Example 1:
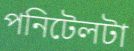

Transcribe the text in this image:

পনিটেলটা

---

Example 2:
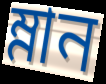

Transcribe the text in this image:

ম্নান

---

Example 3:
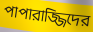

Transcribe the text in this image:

পাপারাজ্জিদের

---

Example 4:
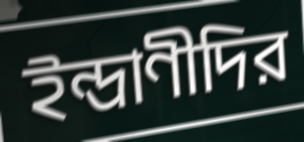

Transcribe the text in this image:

ইন্দ্রাণীদির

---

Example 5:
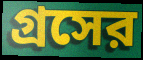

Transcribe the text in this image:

গ্রসের